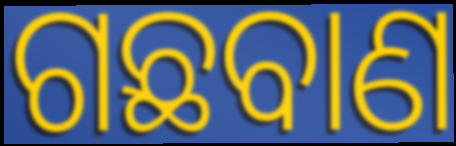
ଗଛବାଣ